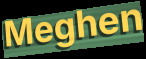
Meghen